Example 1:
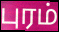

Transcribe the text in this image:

புரம்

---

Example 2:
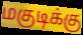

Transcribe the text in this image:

மகுடிக்கு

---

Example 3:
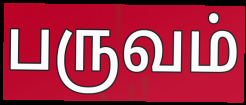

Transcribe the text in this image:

பருவம்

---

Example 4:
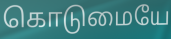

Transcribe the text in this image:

கொடுமையே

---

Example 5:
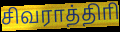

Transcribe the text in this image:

சிவராத்திரி